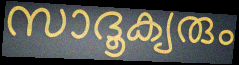
സാദൂക്യരും